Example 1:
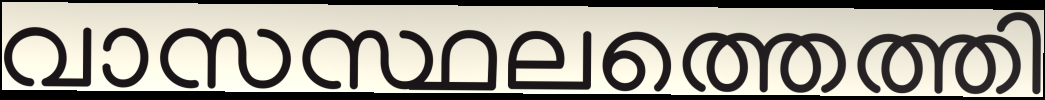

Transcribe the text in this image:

വാസസ്ഥലത്തെത്തി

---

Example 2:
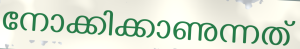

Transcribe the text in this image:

നോക്കിക്കാണുന്നത്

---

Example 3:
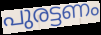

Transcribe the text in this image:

പുരട്ടണം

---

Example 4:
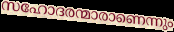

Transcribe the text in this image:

സഹോദരന്മാരാണെന്നും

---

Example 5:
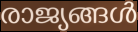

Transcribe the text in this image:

രാജ്യങ്ങൾ